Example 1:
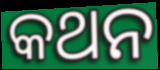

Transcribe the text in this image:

କଥନ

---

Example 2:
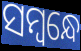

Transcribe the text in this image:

ସମ୍ବନ୍ଧେ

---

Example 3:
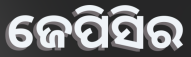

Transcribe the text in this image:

ଜେପିସିର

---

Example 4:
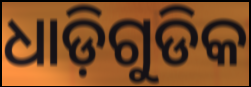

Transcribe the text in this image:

ଧାଡ଼ିଗୁଡିକ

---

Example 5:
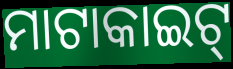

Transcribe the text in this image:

ମାଟାକାଇଟ୍